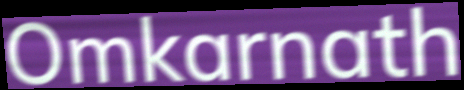
Omkarnath